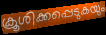
ക്രൂശിക്കപ്പെടുകയും